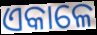
ଏକାଳେ